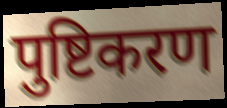
पुष्टिकरण